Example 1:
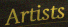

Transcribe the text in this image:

Artists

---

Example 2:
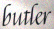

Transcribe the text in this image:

butler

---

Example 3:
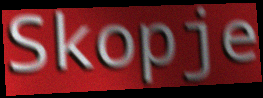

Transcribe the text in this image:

Skopje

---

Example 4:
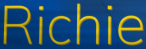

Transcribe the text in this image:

Richie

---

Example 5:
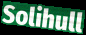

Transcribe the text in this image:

Solihull